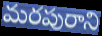
మరపురాని